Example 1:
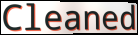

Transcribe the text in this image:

Cleaned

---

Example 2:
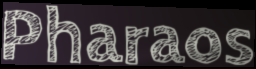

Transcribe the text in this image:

Pharaos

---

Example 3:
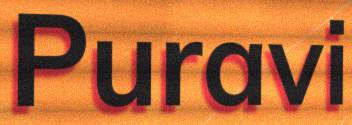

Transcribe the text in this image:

Puravi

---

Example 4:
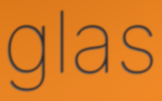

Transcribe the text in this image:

glas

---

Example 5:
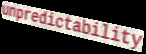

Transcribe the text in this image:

unpredictability